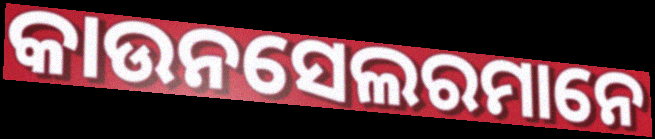
କାଉନସେଲରମାନେ